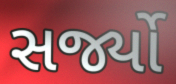
સર્જ્યો